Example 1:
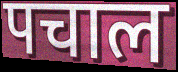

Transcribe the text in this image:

पचाल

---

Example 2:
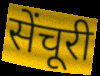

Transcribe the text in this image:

सेंचूरी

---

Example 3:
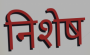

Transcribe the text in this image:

निशेष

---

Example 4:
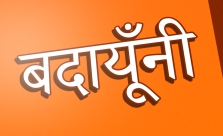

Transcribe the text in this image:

बदायूँनी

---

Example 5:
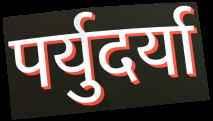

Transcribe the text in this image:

पर्युदर्या